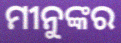
ମୀନୁଙ୍କର